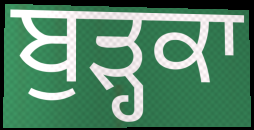
ਬੁੜ੍ਹਕਾ